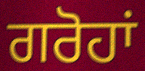
ਗਰੋਹਾਂ